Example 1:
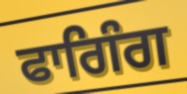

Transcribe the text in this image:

ਫਾਗਿੰਗ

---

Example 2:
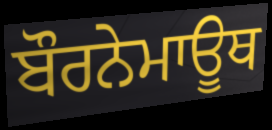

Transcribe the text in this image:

ਬੌਰਨੇਮਾਊਥ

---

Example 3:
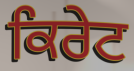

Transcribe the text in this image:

ਕਿਰੇਟ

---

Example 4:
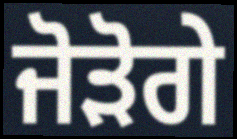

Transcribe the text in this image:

ਜੋੜੋਗੇ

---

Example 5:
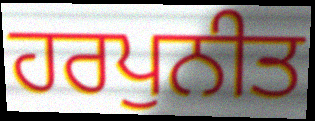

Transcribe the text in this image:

ਹਰਪੁਨੀਤ